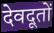
देवदूतों